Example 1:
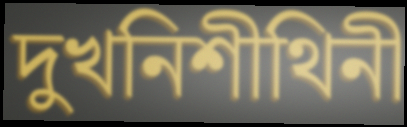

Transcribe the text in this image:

দুখনিশীথিনী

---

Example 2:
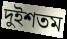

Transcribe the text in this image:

দুইশতম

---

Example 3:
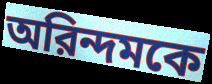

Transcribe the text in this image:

অরিন্দমকে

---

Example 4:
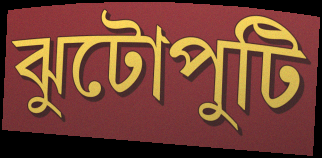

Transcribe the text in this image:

ঝুটোপুটি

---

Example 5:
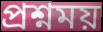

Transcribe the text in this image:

প্রশ্নময়